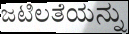
ಜಟಿಲತೆಯನ್ನು